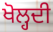
ਖੋਲ੍ਹਦੀ